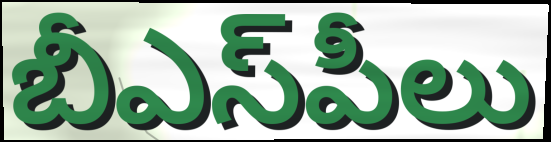
బీఎస్‌పీలు